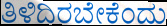
ತಿಳಿದಿರಬೇಕೆಂದು